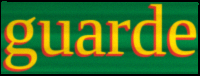
guarde